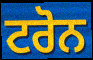
ਟਰੋਨ